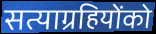
सत्याग्रहियोंको